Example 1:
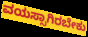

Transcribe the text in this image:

ವಯಸ್ಸಾಗಿರಬೇಕು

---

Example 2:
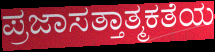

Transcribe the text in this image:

ಪ್ರಜಾಸತ್ತಾತ್ಮಕತೆಯ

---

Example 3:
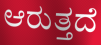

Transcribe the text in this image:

ಆರುತ್ತದೆ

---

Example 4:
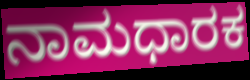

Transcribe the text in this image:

ನಾಮಧಾರಕ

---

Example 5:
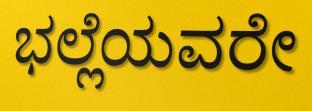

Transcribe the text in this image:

ಭಲ್ಲೆಯವರೇ